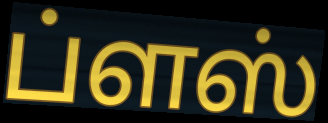
ப்ளஸ்